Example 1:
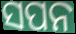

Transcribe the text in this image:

ସପନ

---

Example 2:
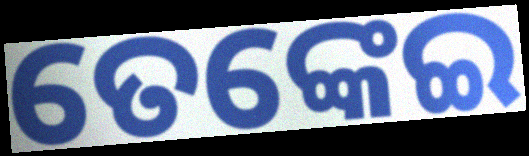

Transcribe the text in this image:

ତେଙ୍କେଇ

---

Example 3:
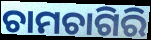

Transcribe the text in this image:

ଚାମଚାଗିରି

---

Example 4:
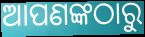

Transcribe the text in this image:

ଆପଣଙ୍କଠାରୁ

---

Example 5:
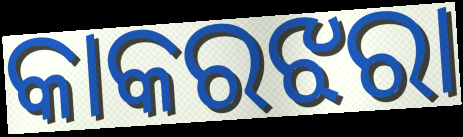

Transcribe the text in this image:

କାକରଝରା